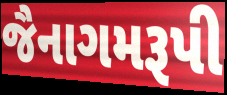
જૈનાગમરૂપી